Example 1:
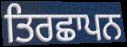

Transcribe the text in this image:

ਤਿਰਛਾਪਨ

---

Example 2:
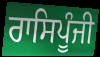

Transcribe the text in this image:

ਰਾਸਿਪੂੰਜੀ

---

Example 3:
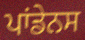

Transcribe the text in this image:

ਪਾਂਡੇਨਸ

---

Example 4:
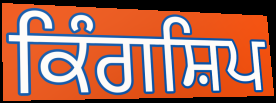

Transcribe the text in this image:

ਕਿੰਗਸ਼ਿਪ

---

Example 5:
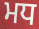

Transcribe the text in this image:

ਮਧ